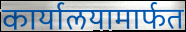
कार्यालयामार्फत